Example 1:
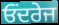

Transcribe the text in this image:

ਓਂਦਰੇਜ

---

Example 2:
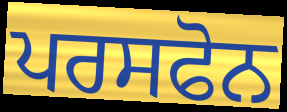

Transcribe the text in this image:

ਪਰਸਫੋਨ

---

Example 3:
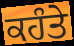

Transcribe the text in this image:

ਕਹੰਤੇ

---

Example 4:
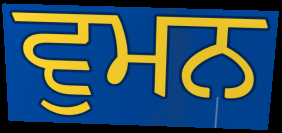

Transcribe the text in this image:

ਵੁਮਨ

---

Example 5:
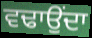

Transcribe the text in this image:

ਵਢਾਉਂਦਾ